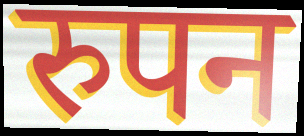
रुपन